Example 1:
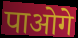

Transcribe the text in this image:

पाओगे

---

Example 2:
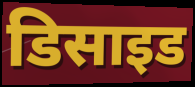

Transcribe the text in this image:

डिसाइड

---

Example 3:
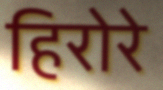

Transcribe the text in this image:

हिरोरे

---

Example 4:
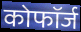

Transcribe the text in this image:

कोफॉर्ज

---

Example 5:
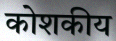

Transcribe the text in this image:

कोशकीय